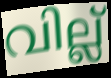
വില്ല്